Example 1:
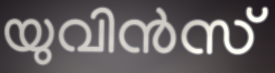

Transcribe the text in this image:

യുവിൻസ്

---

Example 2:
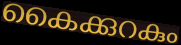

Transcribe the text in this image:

കൈക്കുറകും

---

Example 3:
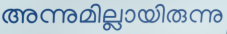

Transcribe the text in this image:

അന്നുമില്ലായിരുന്നു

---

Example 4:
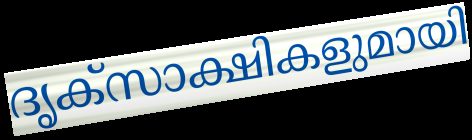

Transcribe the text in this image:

ദൃക്സാക്ഷികളുമായി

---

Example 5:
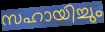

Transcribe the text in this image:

സഹായിച്ചും